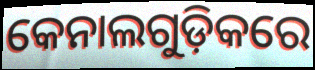
କେନାଲଗୁଡ଼ିକରେ